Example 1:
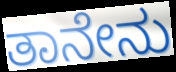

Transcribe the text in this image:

ತಾನೇನು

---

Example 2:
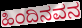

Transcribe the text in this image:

ಹಿಂದಿನವನ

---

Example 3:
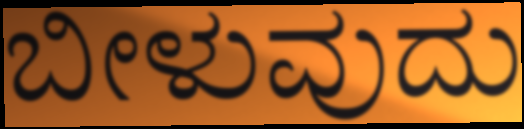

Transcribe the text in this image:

ಬೀಳುವುದು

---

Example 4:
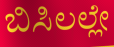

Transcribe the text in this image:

ಬಿಸಿಲಲ್ಲೇ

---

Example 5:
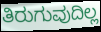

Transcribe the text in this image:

ತಿರುಗುವುದಿಲ್ಲ